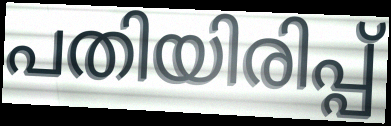
പതിയിരിപ്പ്